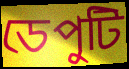
ডেপুটি